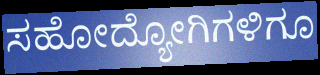
ಸಹೋದ್ಯೋಗಿಗಳಿಗೂ